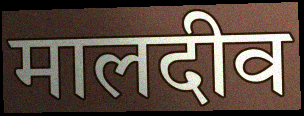
मालदीव